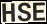
HSE